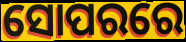
ସୋପରରେ